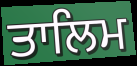
ਤਾਲਿਮ